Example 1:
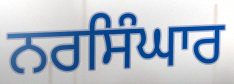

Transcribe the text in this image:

ਨਰਸਿੰਘਾਰ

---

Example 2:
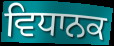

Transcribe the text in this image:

ਵਿਧਾਨਕ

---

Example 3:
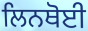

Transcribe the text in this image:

ਲਿਨਥੋਈ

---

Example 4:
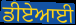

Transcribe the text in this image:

ਡੀਏਆਈ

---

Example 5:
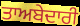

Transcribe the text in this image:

ਤਾਅਬੇਦਾਰੀ